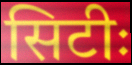
सिटीः